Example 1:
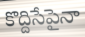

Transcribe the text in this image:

కొద్దిసేపైనా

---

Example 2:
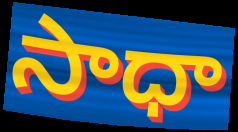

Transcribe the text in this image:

సాధా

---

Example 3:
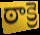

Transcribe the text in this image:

ఠాక్రె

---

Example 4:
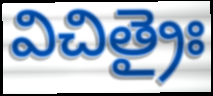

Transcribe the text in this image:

విచిత్రైః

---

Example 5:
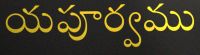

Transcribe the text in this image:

యపూర్వము